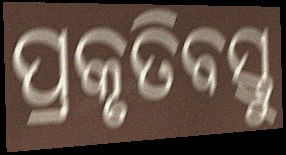
ପ୍ରକୃତିବସ୍ତୁ